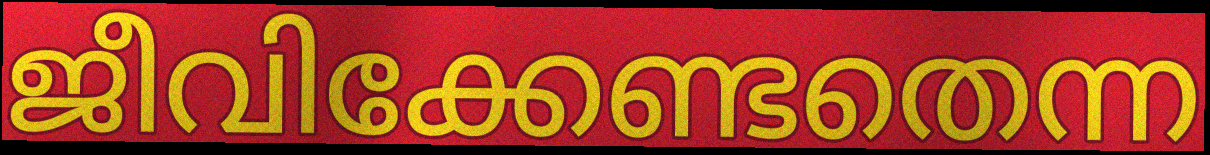
ജീവിക്കേണ്ടതെന്ന